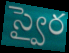
స్వైర